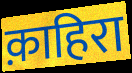
क़ाहिरा